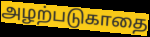
அழற்படுகாதை